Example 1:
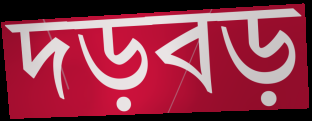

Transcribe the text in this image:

দড়বড়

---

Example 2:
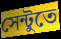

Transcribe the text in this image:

সেন্টুতে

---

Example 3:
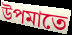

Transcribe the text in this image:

উপমাতে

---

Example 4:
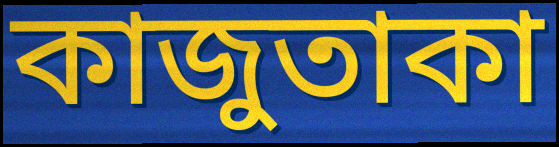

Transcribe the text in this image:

কাজুতাকা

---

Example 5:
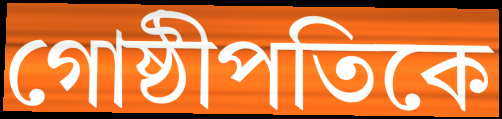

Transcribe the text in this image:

গোষ্ঠীপতিকে